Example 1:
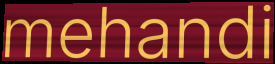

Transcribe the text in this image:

mehandi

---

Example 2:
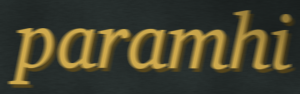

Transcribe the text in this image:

paramhi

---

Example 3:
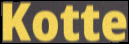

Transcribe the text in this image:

Kotte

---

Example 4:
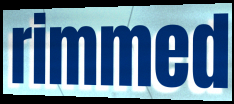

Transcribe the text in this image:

rimmed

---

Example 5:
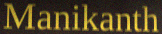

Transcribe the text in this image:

Manikanth